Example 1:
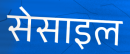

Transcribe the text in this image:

सेसाइल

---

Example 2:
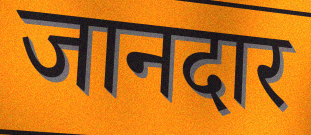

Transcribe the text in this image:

जानदार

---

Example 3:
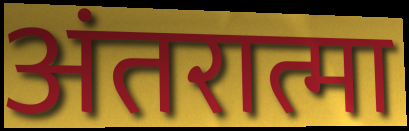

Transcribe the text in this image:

अंतरात्मा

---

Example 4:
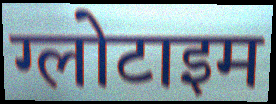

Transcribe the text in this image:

ग्लोटाइम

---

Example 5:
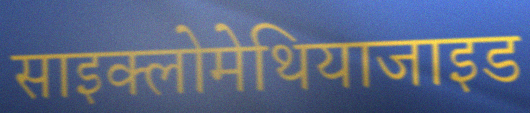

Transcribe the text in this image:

साइक्लोमेथियाजाइड